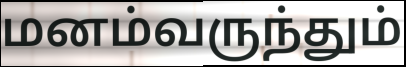
மனம்வருந்தும்